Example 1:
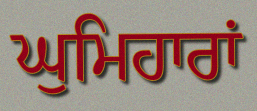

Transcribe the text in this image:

ਘੁਮਿਹਾਰਾਂ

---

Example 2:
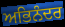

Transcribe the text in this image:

ਅਭਿਨੰਦਰ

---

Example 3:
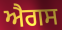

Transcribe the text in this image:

ਐਗਸ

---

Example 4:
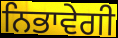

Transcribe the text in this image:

ਨਿਭਾਵੇਗੀ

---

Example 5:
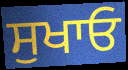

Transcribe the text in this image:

ਸੁਖਾਓ